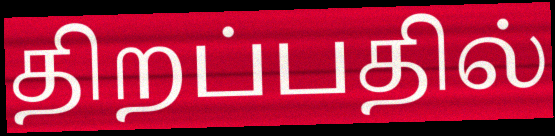
திறப்பதில்